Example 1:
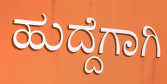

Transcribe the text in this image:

ಹುದ್ದೆಗಾಗಿ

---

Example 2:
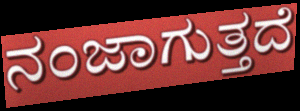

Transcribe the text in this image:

ನಂಜಾಗುತ್ತದೆ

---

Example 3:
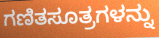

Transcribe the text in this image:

ಗಣಿತಸೂತ್ರಗಳನ್ನು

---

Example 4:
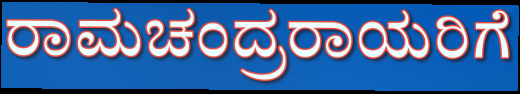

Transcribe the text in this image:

ರಾಮಚಂದ್ರರಾಯರಿಗೆ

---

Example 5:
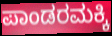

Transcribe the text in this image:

ಪಾಂಡರಮಕ್ಕಿ